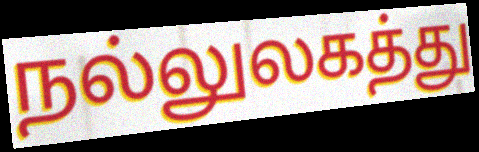
நல்லுலகத்து